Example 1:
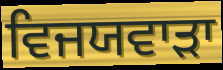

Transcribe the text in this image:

ਵਿਜਯਵਾੜਾ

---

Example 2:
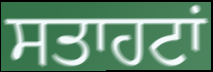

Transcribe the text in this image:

ਸਤਾਹਟਾਂ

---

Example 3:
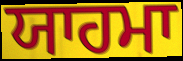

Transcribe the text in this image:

ਯਾਹਮਾ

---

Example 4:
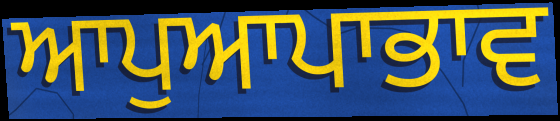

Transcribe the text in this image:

ਆਪੁਆਪਾਭਾਵ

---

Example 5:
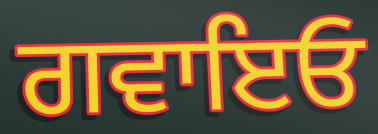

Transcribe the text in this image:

ਗਵਾਇਓ